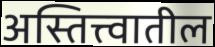
अस्तित्त्वातील